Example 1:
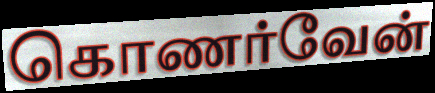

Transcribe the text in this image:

கொணர்வேன்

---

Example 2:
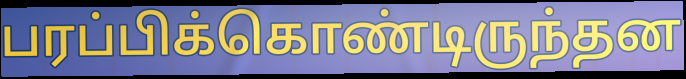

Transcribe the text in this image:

பரப்பிக்கொண்டிருந்தன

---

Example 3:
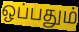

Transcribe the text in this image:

ஒப்பதும்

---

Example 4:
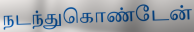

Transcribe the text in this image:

நடந்துகொண்டேன்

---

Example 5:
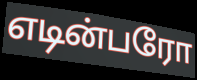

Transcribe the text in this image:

எடின்பரோ